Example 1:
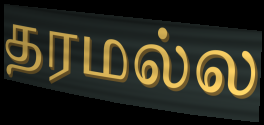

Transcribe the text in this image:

தரமல்ல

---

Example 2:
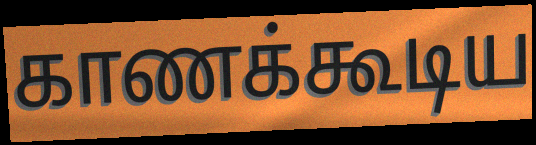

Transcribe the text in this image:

காணக்கூடிய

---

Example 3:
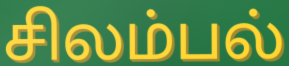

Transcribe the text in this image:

சிலம்பல்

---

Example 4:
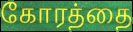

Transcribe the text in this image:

கோரத்தை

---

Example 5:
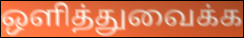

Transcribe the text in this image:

ஒளித்துவைக்க